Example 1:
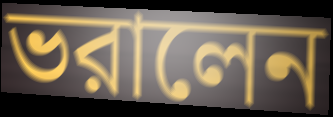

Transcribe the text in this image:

ভরালেন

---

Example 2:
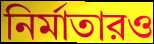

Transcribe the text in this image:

নির্মাতারও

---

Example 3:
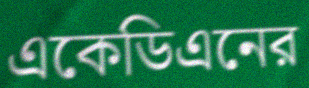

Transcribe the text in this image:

একেডিএনের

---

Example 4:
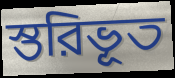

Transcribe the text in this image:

স্তরিভূত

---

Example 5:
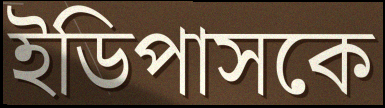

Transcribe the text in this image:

ইডিপাসকে